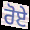
ਰੋਏ